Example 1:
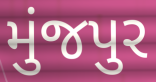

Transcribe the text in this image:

મુંજપુર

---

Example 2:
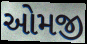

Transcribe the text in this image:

ઓમજી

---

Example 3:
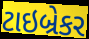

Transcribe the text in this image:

ટાઇબ્રેકર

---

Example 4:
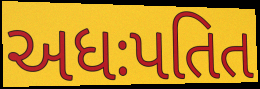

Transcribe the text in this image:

અધઃપતિત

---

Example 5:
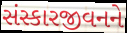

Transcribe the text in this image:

સંસ્કારજીવનને